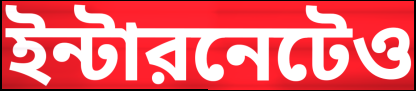
ইন্টারনেটেও